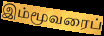
இம்மூவரைப்